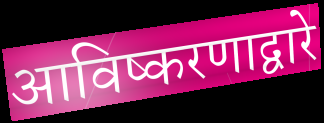
आविष्करणाद्वारे